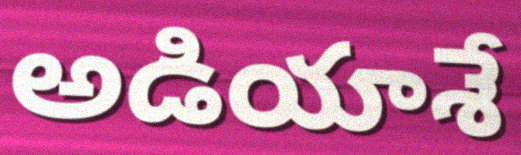
అడియాశే